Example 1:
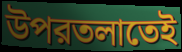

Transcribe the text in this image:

উপরতলাতেই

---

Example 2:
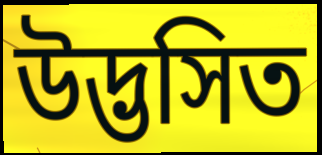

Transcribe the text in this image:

উদ্ভসিত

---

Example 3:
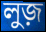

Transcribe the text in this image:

লুজ়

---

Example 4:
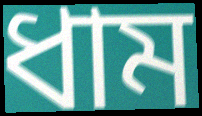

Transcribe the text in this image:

ধাম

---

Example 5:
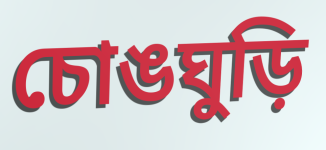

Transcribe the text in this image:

চোঙঘুড়ি